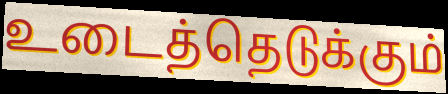
உடைத்தெடுக்கும்